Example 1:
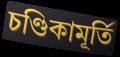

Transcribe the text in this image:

চণ্ডিকামূর্তি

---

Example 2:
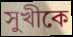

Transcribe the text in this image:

সুখীকে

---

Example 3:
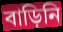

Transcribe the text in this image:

বাড়িনি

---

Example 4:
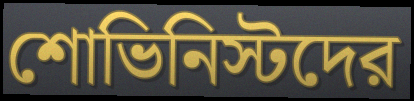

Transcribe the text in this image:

শোভিনিস্টদের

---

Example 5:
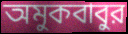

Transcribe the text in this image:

অমুকবাবুর